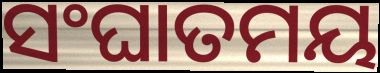
ସଂଘାତମୟ